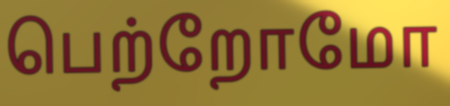
பெற்றோமோ